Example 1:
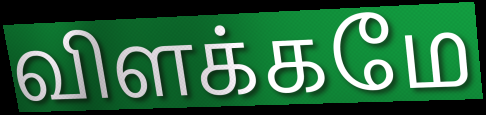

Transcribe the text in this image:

விளக்கமே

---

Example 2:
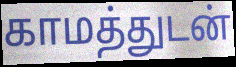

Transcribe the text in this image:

காமத்துடன்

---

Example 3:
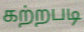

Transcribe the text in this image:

கற்றபடி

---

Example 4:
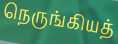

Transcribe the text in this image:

நெருங்கியத்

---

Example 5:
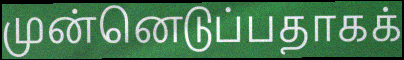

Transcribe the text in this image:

முன்னெடுப்பதாகக்